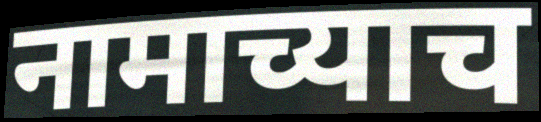
नामाच्याच